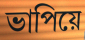
ভাপিয়ে